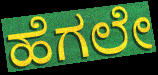
ಹೆಗಲೇ